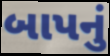
બાપનું